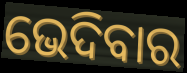
ଭେଦିବାର